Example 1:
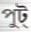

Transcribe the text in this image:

পুট্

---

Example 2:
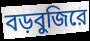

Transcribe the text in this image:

বড়বুজিরে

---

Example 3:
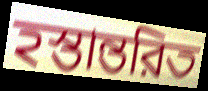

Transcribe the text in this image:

হস্তান্তরিত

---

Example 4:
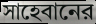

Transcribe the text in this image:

সাহেবানের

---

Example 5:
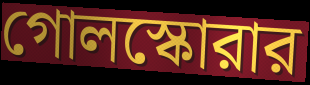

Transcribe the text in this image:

গোলস্কোরার